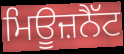
ਮਿਊਜ਼ਨੈੱਟ